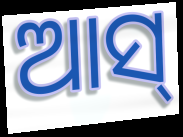
ଆସ୍